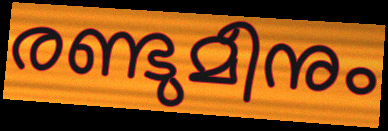
രണ്ടുമീനും